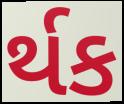
ર્થક